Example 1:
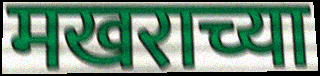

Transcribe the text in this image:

मखराच्या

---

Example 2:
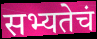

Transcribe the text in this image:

सभ्यतेचं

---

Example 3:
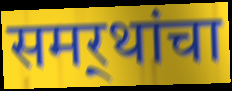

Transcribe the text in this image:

समर्थांचा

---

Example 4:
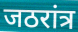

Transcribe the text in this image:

जठरांत्र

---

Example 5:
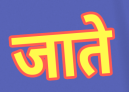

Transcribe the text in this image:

जाते